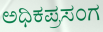
ಅಧಿಕಪ್ರಸಂಗ